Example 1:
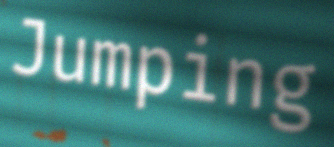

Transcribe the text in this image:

Jumping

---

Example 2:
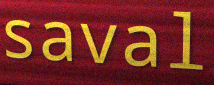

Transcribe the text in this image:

saval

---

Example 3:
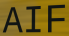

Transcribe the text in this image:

AIF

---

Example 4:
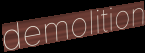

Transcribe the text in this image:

demolition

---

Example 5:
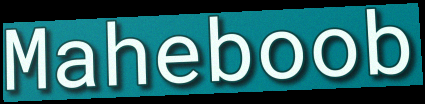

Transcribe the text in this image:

Maheboob